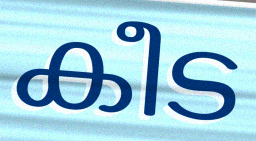
കീട